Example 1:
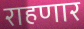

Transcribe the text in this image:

राहणार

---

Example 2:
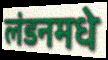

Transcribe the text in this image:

लंडनमधे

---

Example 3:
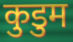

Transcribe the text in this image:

कुडुम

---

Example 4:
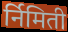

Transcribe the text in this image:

र्निमिती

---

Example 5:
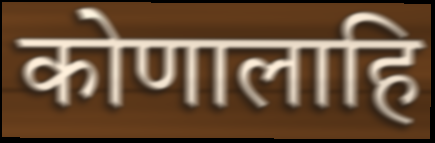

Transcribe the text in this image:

कोणालाहि